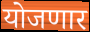
योजणार